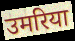
उमरिया